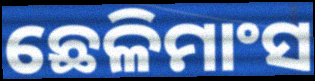
ଛେଳିମାଂସ